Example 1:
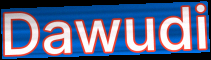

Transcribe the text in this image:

Dawudi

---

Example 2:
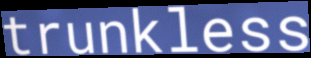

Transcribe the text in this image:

trunkless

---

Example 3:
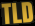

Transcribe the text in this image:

TLD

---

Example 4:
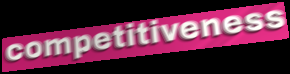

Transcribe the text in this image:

competitiveness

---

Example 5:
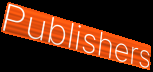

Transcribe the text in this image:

Publishers